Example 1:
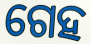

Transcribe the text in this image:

ଗେହ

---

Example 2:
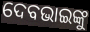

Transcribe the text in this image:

ଦେବଭାଇଙ୍କୁ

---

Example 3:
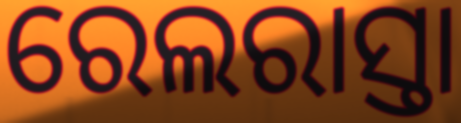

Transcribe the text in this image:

ରେଲରାସ୍ତା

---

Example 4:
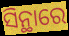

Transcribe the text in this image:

ସିନ୍ଥାରେ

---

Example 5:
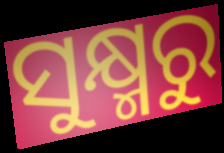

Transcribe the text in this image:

ସୁକ୍ଷ୍ମରୁ